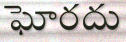
ఘోరదు